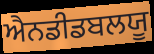
ਐਨਡੀਡਬਲਯੂ